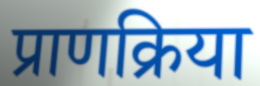
प्राणक्रिया